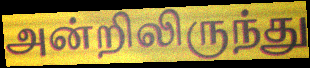
அன்றிலிருந்து